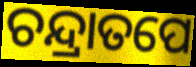
ଚନ୍ଦ୍ରାତପେ